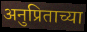
अनुप्रिताच्या